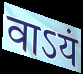
वाऽयं